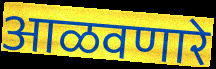
आळवणारे